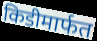
किडीमार्फत